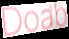
Doab